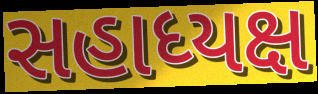
સહાધ્યક્ષ